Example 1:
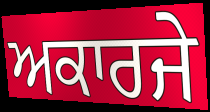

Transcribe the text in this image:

ਅਕਾਰਜੇ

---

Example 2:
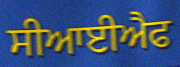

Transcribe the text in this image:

ਸੀਆਈਐਫ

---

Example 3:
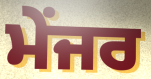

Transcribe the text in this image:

ਮੇਂਜਰ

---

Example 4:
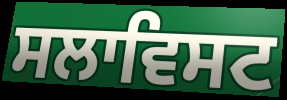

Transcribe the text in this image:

ਸਲਾਵਿਸਟ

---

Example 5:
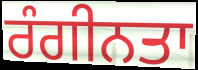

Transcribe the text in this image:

ਰੰਗੀਨਤਾ